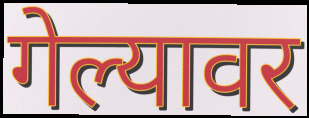
गेल्यावर